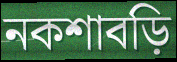
নকশাবড়ি